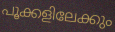
പൂക്കളിലേക്കും